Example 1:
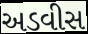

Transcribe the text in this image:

અડવીસ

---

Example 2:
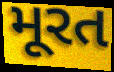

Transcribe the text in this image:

મૂરત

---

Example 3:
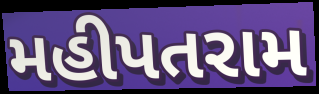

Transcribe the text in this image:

મહીપતરામ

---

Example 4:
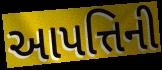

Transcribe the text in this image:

આપત્તિની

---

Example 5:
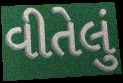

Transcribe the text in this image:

વીતેલું